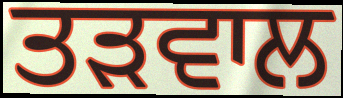
ਤੜਵਾਲ